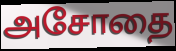
அசோதை